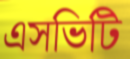
এসভিটি